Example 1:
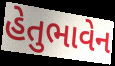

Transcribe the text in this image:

હેતુભાવેન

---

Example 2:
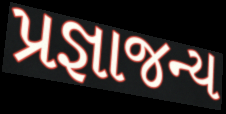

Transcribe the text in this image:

પ્રજ્ઞાજન્ય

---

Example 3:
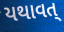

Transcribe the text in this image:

યથાવત્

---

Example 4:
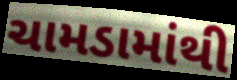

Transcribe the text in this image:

ચામડામાંથી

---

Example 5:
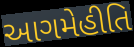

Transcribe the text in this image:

આગમેહીતિ